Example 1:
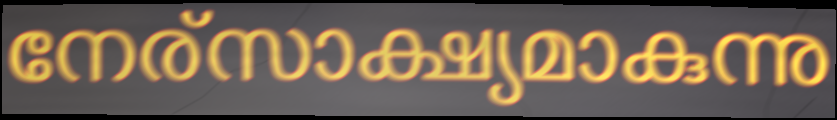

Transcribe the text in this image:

നേര്സാക്ഷ്യമാകുന്നു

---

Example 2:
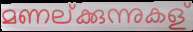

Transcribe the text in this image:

മണല്ക്കുന്നുകള്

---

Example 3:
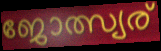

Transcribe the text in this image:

ജോത്സ്യര്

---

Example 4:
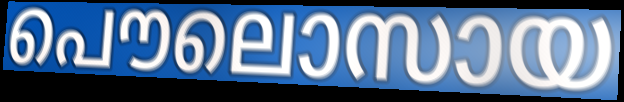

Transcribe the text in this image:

പൌലൊസായ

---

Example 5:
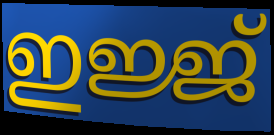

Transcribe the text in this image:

ഇജ്ജ്